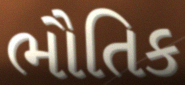
ભૌતિક